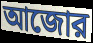
আজোর